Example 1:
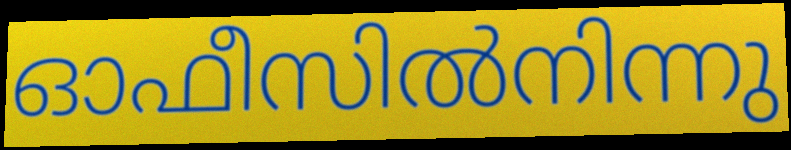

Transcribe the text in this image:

ഓഫീസിൽനിന്നു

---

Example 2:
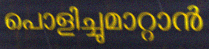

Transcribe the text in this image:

പൊളിച്ചുമാറ്റാൻ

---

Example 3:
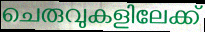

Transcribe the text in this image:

ചെരുവുകളിലേക്ക്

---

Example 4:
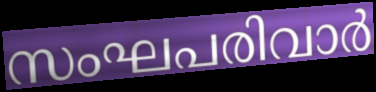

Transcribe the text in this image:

സംഘപരിവാർ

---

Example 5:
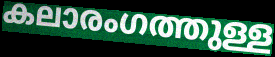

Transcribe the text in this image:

കലാരംഗത്തുള്ള